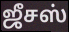
ஜீசஸ்